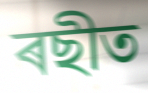
ৰছীত